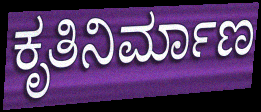
ಕೃತಿನಿರ್ಮಾಣ